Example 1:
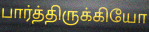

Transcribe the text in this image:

பார்த்திருக்கியோ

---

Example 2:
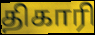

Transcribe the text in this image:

திகாரி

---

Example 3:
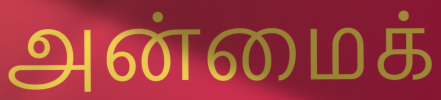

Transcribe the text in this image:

அன்மைக்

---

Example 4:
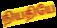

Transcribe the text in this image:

நியதியே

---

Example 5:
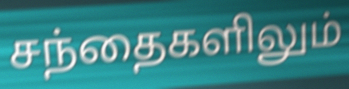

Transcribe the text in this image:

சந்தைகளிலும்